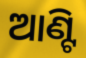
ଆଣ୍ଟି